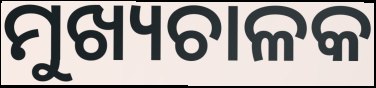
ମୁଖ୍ୟଚାଳକ